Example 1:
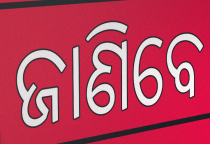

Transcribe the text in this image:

ଜାଣିବେ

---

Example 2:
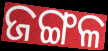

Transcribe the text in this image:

ଜଙ୍ଗଳ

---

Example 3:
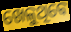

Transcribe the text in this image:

ଖେଳୁଥିବେ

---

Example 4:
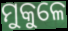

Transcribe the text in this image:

ମୁକୁଳେ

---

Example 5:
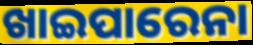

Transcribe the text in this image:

ଖାଇପାରେନା